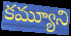
కమ్యూని